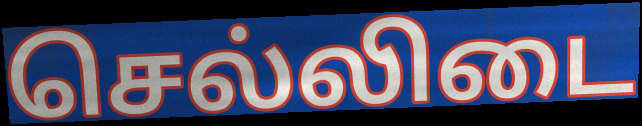
செல்லிடை